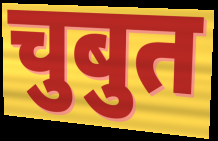
चुबुत